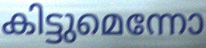
കിട്ടുമെന്നോ